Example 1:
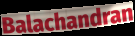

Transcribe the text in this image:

Balachandran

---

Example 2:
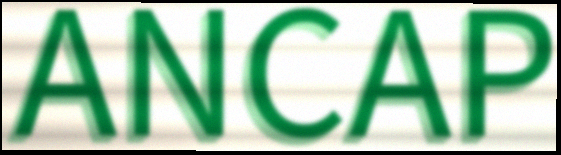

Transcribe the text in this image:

ANCAP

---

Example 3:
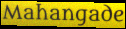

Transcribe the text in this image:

Mahangade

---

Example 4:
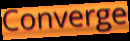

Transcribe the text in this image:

Converge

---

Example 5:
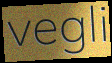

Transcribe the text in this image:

vegli